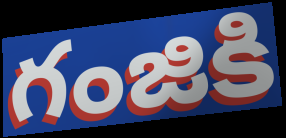
గంజికి